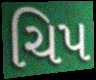
ચિપ